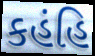
કહંહિ